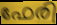
ഫേരി